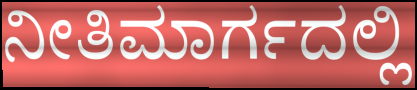
ನೀತಿಮಾರ್ಗದಲ್ಲಿ